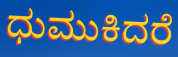
ಧುಮುಕಿದರೆ